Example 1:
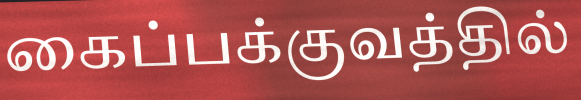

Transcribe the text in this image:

கைப்பக்குவத்தில்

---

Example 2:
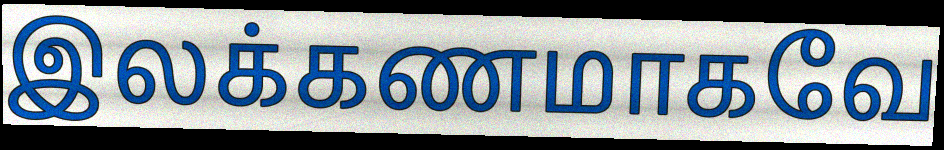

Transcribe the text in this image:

இலக்கணமாகவே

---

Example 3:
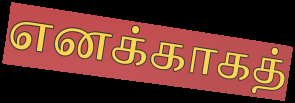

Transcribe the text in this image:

எனக்காகத்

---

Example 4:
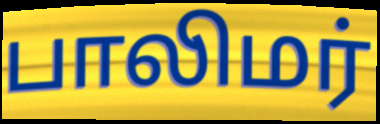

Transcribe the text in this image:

பாலிமர்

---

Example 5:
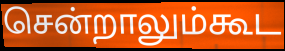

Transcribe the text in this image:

சென்றாலும்கூட